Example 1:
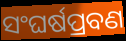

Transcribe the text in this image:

ସଂଘର୍ଷପ୍ରବଣ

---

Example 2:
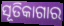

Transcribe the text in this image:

ସୂତିକାଗାର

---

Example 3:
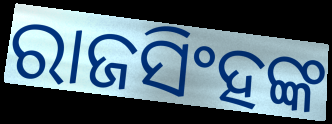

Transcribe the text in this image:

ରାଜସିଂହଙ୍କ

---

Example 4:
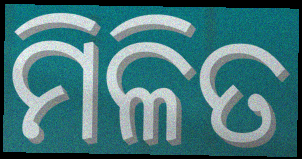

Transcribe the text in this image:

ମିଳିତ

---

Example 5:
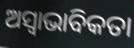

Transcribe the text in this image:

ଅସ୍ୱାଭାବିକତା